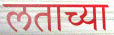
लताच्या